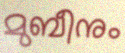
മുബീനും